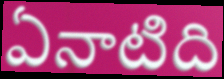
ఏనాటిది